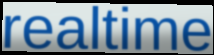
realtime